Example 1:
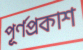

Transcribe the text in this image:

পূর্ণপ্রকাশ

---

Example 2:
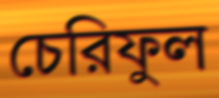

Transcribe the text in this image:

চেরিফুল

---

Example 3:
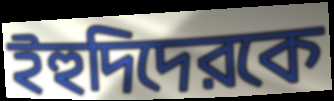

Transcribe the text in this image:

ইহুদিদেরকে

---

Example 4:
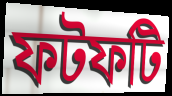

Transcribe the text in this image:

ফটফটি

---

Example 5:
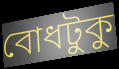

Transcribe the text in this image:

বোধটুকু